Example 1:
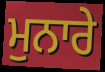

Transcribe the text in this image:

ਮੁਨਾਰੇ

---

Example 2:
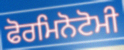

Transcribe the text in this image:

ਫੋਰਮਿਨੋਟੋਮੀ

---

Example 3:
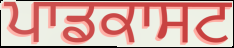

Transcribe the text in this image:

ਪਾਡਕਾਸਟ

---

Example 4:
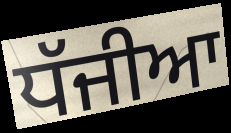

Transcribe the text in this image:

ਧੱਜੀਆ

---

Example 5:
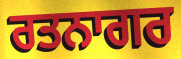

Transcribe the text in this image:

ਰਤਨਾਗਰ